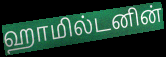
ஹாமில்டனின்